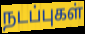
நடப்புகள்